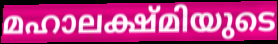
മഹാലക്ഷ്മിയുടെ